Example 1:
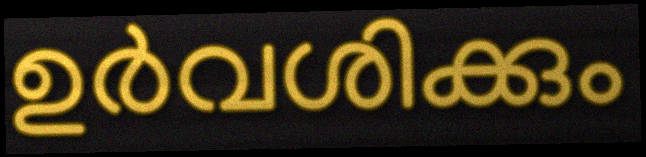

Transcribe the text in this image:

ഉർവശിക്കും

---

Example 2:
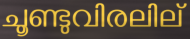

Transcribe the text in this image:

ചൂണ്ടുവിരലില്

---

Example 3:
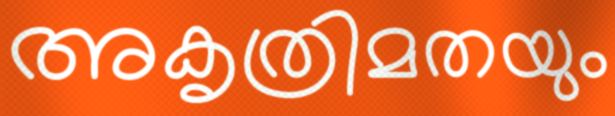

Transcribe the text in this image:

അകൃത്രിമതയും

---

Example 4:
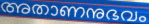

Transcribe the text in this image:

അതാണനുഭവം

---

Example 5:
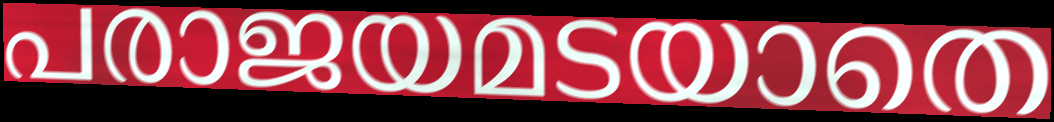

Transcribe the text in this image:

പരാജയമടയാതെ